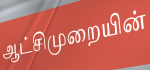
ஆட்சிமுறையின்